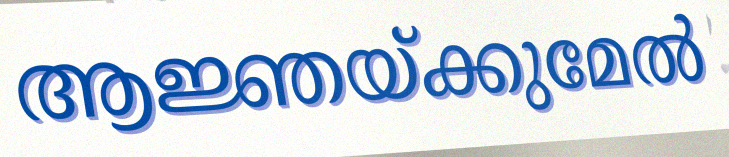
ആജ്ഞയ്ക്കുമേൽ